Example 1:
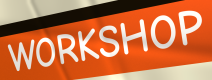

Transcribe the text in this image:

WORKSHOP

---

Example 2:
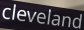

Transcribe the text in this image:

cleveland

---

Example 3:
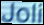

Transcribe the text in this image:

Joli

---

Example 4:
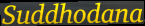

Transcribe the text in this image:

Suddhodana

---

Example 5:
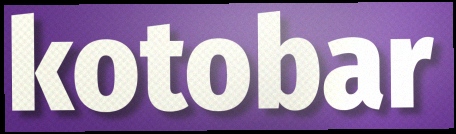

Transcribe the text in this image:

kotobar